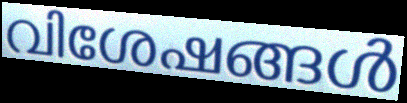
വിശേഷങ്ങൾ